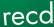
recd